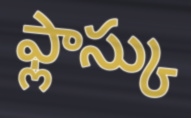
ఫ్లాస్కు